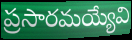
ప్రసారమయ్యేవి